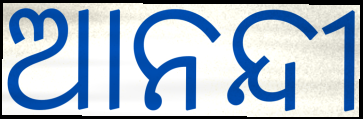
ଆନନ୍ଦୀ